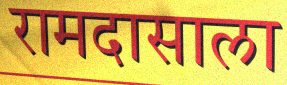
रामदासाला